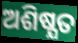
ଅଶିଷ୍ଯତ